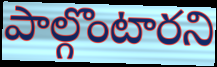
పాల్గొంటారని